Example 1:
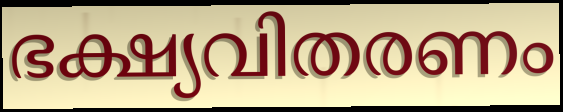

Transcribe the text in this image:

ഭക്ഷ്യവിതരണം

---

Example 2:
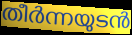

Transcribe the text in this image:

തീർന്നയുടൻ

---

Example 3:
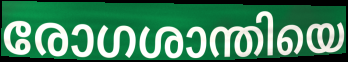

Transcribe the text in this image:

രോഗശാന്തിയെ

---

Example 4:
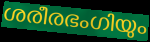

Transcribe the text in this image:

ശരീരഭംഗിയും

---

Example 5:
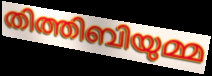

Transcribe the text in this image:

തിത്തിബിയുമ്മ